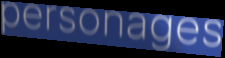
personages